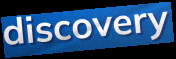
discovery